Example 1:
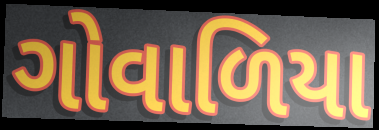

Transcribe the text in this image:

ગોવાળિયા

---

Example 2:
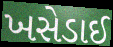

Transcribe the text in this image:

ખસેડાઈ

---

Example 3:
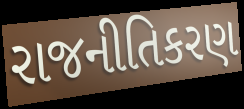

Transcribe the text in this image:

રાજનીતિકરણ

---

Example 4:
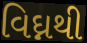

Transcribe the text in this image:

વિઘ્નથી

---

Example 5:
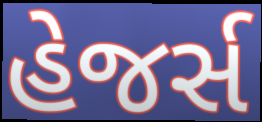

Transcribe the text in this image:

હેજર્સ